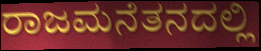
ರಾಜಮನೆತನದಲ್ಲಿ